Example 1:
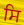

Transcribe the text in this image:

ਸਿ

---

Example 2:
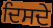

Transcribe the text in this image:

ਦਿਸਦੇ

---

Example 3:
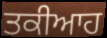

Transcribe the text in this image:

ਤਕੀਆਹ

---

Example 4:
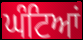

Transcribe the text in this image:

ਘੰਟਿਆਂ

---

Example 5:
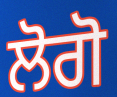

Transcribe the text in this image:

ਲੋਗੋ